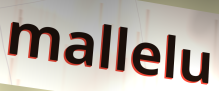
mallelu